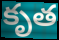
కృత